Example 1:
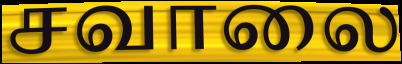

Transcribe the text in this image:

சவாலை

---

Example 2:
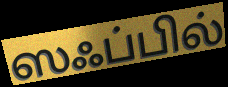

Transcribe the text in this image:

ஸஃப்பில்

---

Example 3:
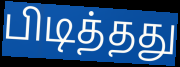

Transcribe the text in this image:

பிடித்தது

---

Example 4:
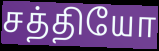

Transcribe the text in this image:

சத்தியோ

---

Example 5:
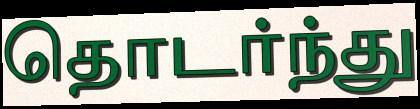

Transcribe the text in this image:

தொடர்ந்து